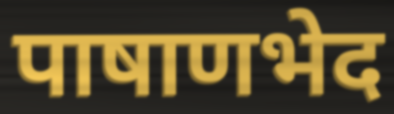
पाषाणभेद